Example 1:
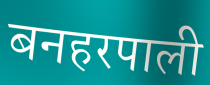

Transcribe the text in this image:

बनहरपाली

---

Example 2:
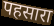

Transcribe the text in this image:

पहसारा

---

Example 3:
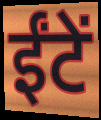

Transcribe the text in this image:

ईंटें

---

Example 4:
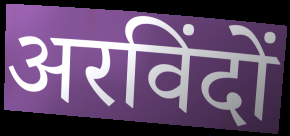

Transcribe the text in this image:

अरविंदों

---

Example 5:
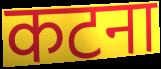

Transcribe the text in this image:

कटना